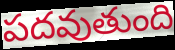
పదవుతుంది